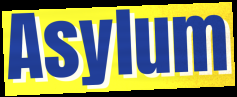
Asylum